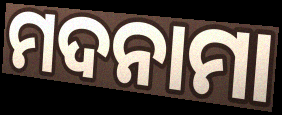
ମଦନାମା